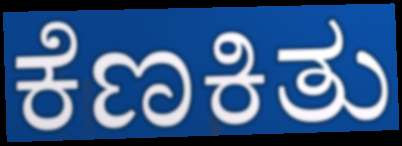
ಕೆಣಕಿತು